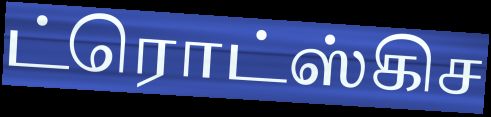
ட்ரொட்ஸ்கிச